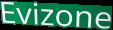
Evizone